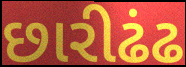
છારીઢંઢ